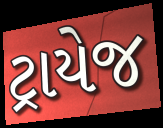
ટ્રાયેજ